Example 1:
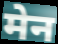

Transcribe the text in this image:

मेन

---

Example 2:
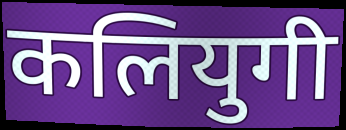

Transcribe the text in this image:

कलियुगी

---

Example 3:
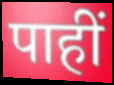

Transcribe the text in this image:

पाहीं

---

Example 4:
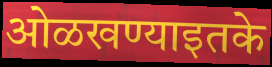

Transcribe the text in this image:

ओळखण्याइतके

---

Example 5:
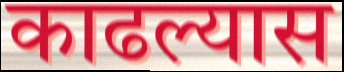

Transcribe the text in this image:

काढल्यास